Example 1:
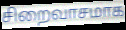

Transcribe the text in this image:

சிறைவாசமாக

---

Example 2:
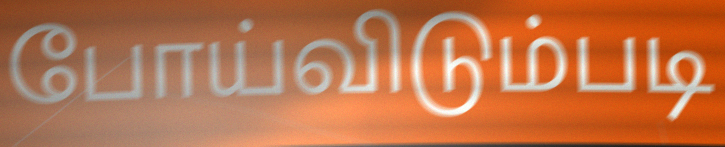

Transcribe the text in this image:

போய்விடும்படி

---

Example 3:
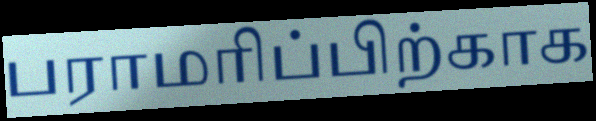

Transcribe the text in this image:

பராமரிப்பிற்காக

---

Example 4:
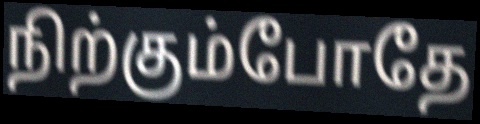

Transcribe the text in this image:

நிற்கும்போதே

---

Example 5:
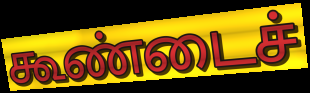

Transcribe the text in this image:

கூண்டைச்